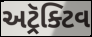
અટ્રૅક્ટિવ